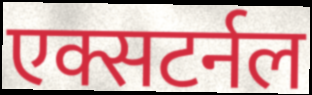
एक्सटर्नल